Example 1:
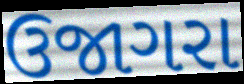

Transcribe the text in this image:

ઉજાગરા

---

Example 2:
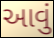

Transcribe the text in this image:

આવું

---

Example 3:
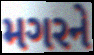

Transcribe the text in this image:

મગરને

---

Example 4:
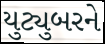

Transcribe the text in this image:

યુટ્યુબરને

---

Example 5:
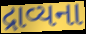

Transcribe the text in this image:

દ્રાવ્યના